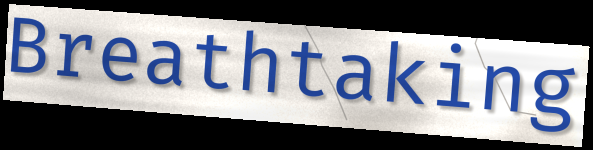
Breathtaking